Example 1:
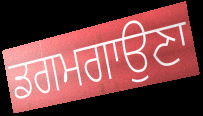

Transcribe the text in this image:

ਡਗਮਗਾਉਣਾ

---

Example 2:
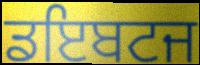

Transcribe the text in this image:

ਡਇਬਟਜ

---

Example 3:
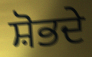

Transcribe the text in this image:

ਸ਼ੋਭਦੇ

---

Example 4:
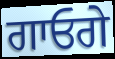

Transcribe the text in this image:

ਗਾਓਗੇ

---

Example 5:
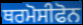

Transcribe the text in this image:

ਥਰਮੋਸੀਫੋਨ